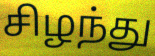
சிழந்து